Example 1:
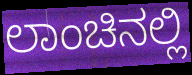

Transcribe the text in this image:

ಲಾಂಚಿನಲ್ಲಿ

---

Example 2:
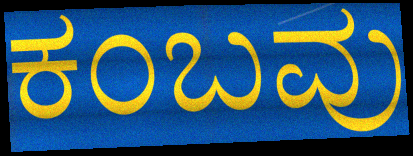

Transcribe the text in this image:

ಕಂಬವು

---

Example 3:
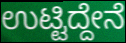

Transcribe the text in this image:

ಉಟ್ಟಿದ್ದೇನೆ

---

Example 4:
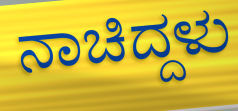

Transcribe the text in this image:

ನಾಚಿದ್ದಳು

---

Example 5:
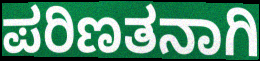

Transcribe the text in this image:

ಪರಿಣತನಾಗಿ